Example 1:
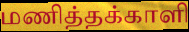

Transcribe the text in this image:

மணித்தக்காளி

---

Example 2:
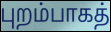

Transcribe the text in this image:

புறம்பாகத்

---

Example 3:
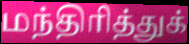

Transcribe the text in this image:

மந்திரித்துக்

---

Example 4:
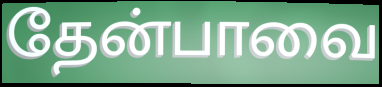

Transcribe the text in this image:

தேன்பாவை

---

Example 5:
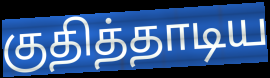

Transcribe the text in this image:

குதித்தாடிய